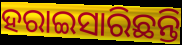
ହରାଇସାରିଛନ୍ତି